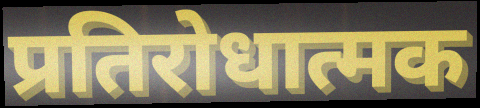
प्रतिरोधात्मक